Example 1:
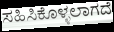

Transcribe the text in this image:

ಸಹಿಸಿಕೊಳ್ಳಲಾಗದೆ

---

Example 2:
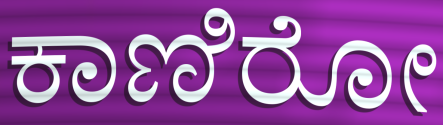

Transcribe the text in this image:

ಕಾಣಿರೋ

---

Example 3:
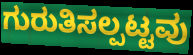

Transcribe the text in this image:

ಗುರುತಿಸಲ್ಪಟ್ಟವು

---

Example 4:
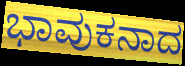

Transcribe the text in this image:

ಭಾವುಕನಾದ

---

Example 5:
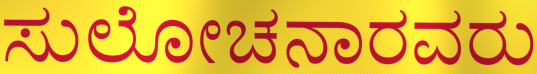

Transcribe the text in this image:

ಸುಲೋಚನಾರವರು